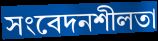
সংবেদনশীলতা